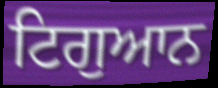
ਟਿਗੁਆਨ